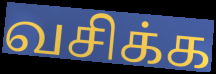
வசிக்க